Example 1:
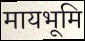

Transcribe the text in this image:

मायभूमि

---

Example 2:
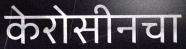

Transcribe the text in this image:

केरोसीनचा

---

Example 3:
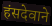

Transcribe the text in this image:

हंसदेवाने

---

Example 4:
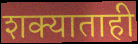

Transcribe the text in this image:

शक्याताही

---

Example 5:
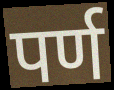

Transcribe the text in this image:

पर्ण